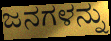
ಜನಗಳನ್ನು